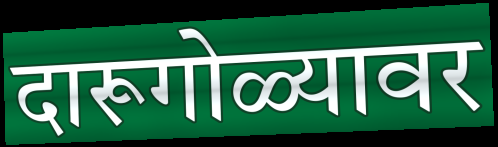
दारूगोळ्यावर